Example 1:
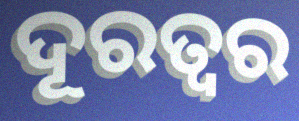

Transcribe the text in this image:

ଦୂରତ୍ଵର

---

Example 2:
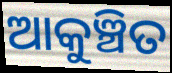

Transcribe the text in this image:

ଆକୁଞ୍ଚିତ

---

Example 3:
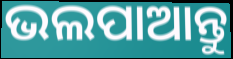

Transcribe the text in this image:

ଭଲପାଆନ୍ତୁ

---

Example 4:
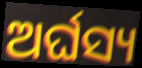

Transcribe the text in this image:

ଅର୍ଘସ୍ୟ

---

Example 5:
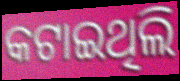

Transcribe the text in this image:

କଟାଇଥିଲି